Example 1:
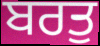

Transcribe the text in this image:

ਬਰਤੁ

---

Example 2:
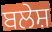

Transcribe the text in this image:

ਬਲੇਸ਼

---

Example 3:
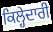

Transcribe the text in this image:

ਕਿਲ੍ਹੇਦਾਰੀ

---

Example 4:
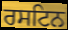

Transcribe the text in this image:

ਰਸਟਿਨ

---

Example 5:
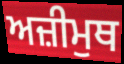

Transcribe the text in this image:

ਅਜ਼ੀਮੁਥ